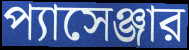
প্যাসেঞ্জার